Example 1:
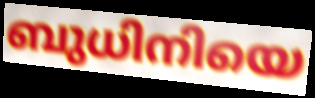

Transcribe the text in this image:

ബുധിനിയെ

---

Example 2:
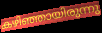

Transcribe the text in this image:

കഴിഞ്ഞായിരുന്നു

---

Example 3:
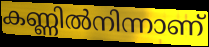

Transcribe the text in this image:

കണ്ണിൽനിന്നാണ്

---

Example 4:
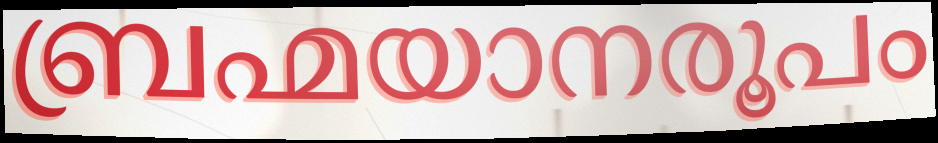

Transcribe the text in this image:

ബ്രഹ്മയാനരൂപം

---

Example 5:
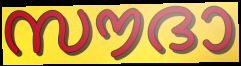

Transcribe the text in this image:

സൗദാ